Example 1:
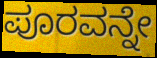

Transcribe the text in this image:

ಪೂರವನ್ನೇ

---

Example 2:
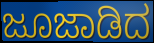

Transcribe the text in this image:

ಜೂಜಾಡಿದ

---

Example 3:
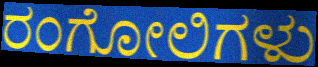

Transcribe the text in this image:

ರಂಗೋಲಿಗಳು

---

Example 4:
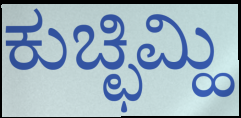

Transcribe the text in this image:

ಕುಚ್ಛಿಮ್ಹಿ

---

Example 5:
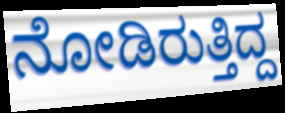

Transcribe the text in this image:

ನೋಡಿರುತ್ತಿದ್ದ